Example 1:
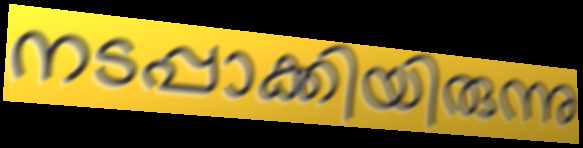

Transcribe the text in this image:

നടപ്പാക്കിയിരുന്നു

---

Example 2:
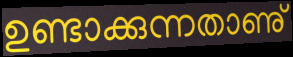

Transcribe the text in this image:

ഉണ്ടാക്കുന്നതാണു്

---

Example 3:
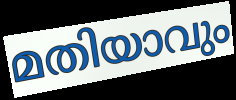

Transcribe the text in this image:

മതിയാവും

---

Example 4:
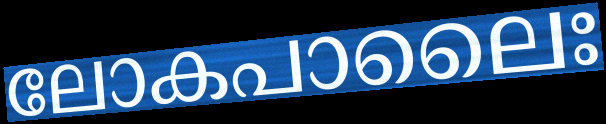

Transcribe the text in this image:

ലോകപാലൈഃ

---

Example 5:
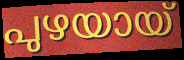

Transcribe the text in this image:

പുഴയായ്